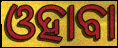
ଓହାବା